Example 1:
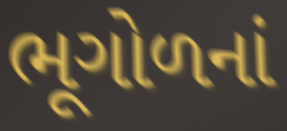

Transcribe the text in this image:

ભૂગોળનાં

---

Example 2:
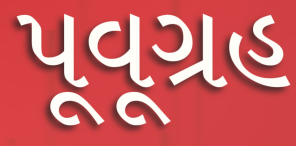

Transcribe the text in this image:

પૂવૂગ્રહ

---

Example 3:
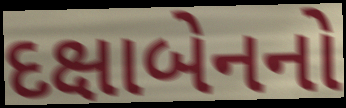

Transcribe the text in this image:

દક્ષાબેનનો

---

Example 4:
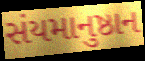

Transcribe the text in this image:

સંયમાનુષ્ઠાન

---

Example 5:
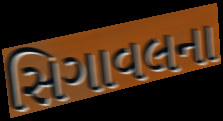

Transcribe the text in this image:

સિગાવલના